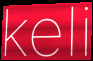
keli